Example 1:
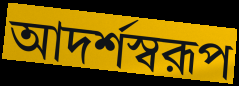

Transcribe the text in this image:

আদর্শস্বরূপ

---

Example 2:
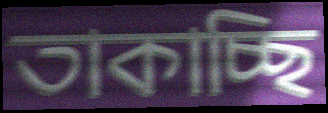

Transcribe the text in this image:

তাকাচ্ছি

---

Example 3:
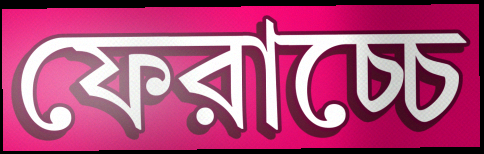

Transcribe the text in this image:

ফেরাচ্চে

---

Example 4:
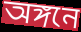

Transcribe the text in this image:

অঙ্গনে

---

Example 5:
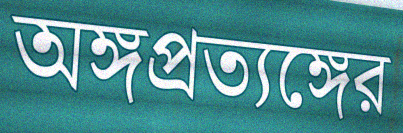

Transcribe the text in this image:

অঙ্গপ্রত্যঙ্গের